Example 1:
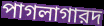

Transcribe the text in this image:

পাগলাগারদ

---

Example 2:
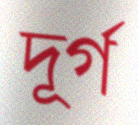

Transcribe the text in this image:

দূর্গ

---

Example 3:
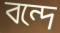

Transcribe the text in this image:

বন্দে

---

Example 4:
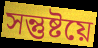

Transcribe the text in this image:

সন্তুষ্টয়ে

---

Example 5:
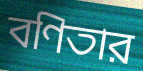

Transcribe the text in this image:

বণিতার